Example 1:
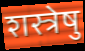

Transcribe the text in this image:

शस्त्रेषु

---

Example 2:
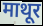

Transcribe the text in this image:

माथूर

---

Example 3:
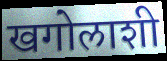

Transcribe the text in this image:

खगोलाशी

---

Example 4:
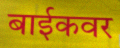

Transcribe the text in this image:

बाईकवर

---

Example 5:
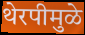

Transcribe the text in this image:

थेरपीमुळे